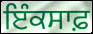
ਇੰਕਸਾਫ਼